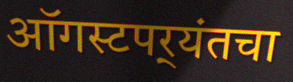
ऑगस्टपर्यंतचा